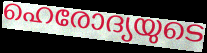
ഹെരോദ്യയുടെ